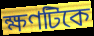
ক্ষণটিকে